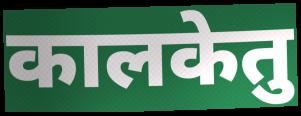
कालकेतु